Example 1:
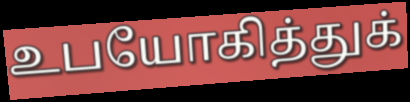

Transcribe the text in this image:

உபயோகித்துக்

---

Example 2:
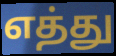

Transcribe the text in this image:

எத்து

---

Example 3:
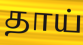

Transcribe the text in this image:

தாய்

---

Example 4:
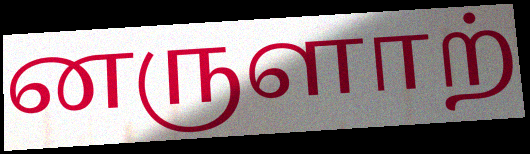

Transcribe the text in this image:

னருளாற்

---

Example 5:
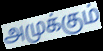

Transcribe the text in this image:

அமுக்கும்